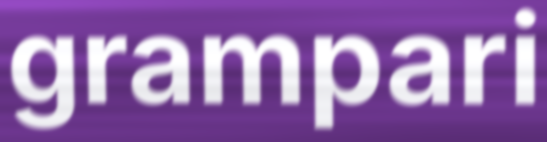
grampari